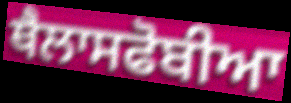
ਥੈਲਾਸਫੋਬੀਆ